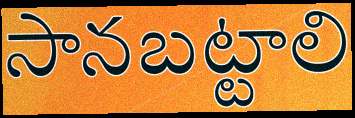
సానబట్టాలి